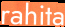
rahita